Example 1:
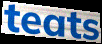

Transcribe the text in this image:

teats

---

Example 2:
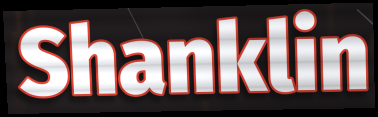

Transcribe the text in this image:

Shanklin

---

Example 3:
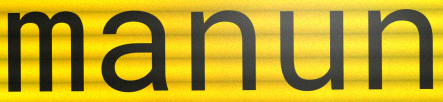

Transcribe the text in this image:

manun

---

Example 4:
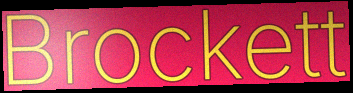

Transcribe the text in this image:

Brockett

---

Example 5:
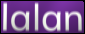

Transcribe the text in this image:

lalan